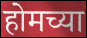
होमच्या